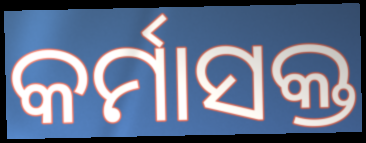
କର୍ମାସକ୍ତ